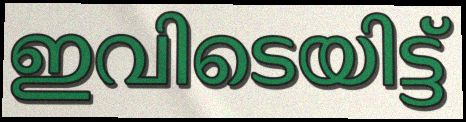
ഇവിടെയിട്ട്